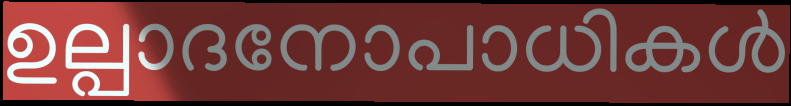
ഉല്പാദനോപാധികൾ